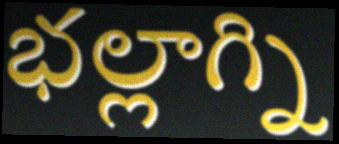
భల్లాగ్ని